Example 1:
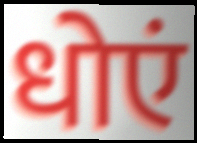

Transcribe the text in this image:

धोएं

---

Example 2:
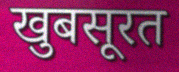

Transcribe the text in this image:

खुबसूरत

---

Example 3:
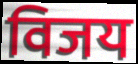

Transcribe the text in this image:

विजय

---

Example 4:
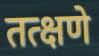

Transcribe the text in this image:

तत्क्षणे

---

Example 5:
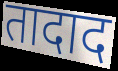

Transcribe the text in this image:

तादाद